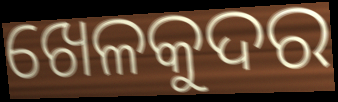
ଖେଳକୁଦର